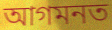
আগমনত